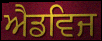
ਐਡਵਿਜ